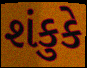
શંકુકે